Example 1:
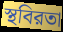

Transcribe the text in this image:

স্থবিরতা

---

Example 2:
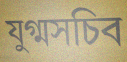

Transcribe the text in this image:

যুগ্মসচিব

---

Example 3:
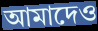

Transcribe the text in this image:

আমাদেও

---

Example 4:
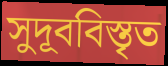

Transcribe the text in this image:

সুদূববিস্তৃত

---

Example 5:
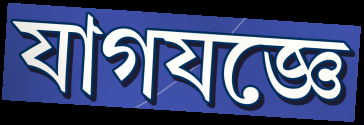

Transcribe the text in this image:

যাগযজ্ঞে